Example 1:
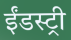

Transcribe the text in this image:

ईंडस्ट्री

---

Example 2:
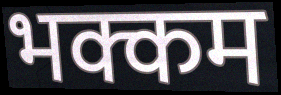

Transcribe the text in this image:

भक्कम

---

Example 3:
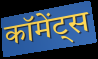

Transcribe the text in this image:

कॉमेंट्स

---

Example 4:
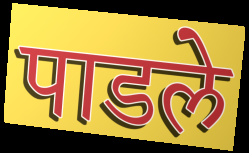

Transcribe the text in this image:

पाडले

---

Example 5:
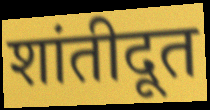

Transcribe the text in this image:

शांतीदूत